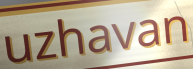
uzhavan